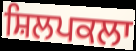
ਸ਼ਿਲਪਕਲਾ